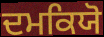
ਦਮਕਿਯੋ